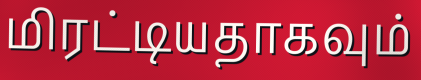
மிரட்டியதாகவும்